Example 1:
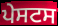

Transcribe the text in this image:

ਪੇਸਟਸ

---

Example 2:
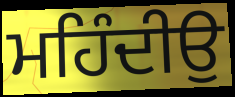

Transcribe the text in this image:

ਮਹਿੰਦੀਉ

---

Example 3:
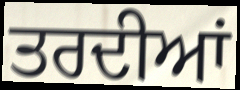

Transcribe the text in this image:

ਤਰਦੀਆਂ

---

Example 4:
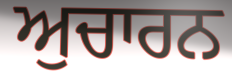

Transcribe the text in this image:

ਅੁਚਾਰਨ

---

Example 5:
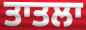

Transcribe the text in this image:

ਤਾਤਲਾ